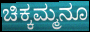
ಚಿಕ್ಕಮ್ಮನೂ